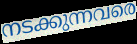
നടക്കുന്നവരെ